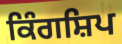
ਕਿੰਗਸ਼ਿਪ